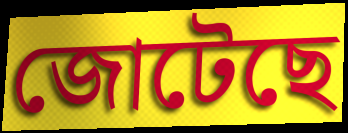
জোটেছে